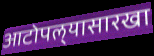
आटोपल्यासारखा